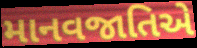
માનવજાતિએ